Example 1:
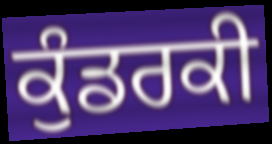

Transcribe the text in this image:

ਕੁੰਡਰਕੀ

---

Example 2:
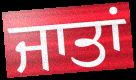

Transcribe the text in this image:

ਜਾਤਾਂ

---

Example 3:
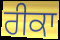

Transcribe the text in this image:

ਰੀਕਾ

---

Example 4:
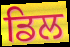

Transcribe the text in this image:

ਡਿਲ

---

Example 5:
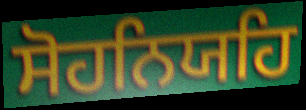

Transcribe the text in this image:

ਸੋਹਨਿਯਹਿ